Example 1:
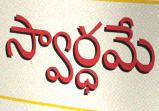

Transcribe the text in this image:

స్వార్ధమే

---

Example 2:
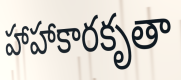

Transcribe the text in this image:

హాహాకారకృతా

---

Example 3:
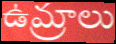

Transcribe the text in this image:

ఉమ్రాలు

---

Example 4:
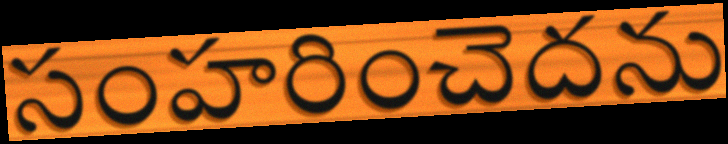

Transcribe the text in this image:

సంహరించెదను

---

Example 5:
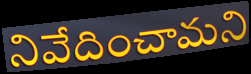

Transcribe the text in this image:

నివేదించామని